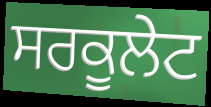
ਸਰਕੂਲੇਟ